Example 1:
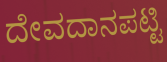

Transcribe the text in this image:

ದೇವದಾನಪಟ್ಟಿ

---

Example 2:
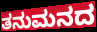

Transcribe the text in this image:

ತನುಮನದ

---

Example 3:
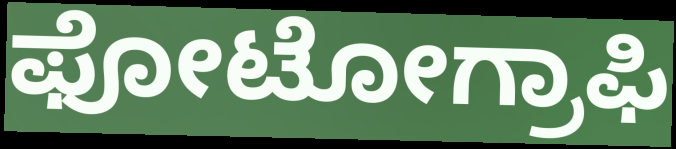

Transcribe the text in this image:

ಫೋಟೋಗ್ರಾಫಿ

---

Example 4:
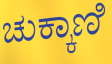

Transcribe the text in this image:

ಚುಕ್ಕಾಣಿ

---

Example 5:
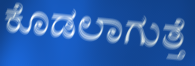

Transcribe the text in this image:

ಕೊಡಲಾಗುತ್ತೆ